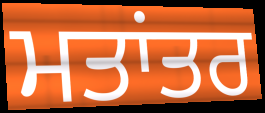
ਮਤਾਂਤਰ